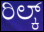
ರಿಲ್ಕ್